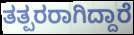
ತತ್ಪರರಾಗಿದ್ದಾರೆ